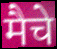
मैचे